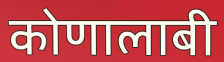
कोणालाबी